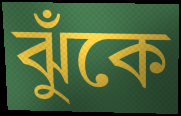
ঝুঁকে